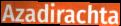
Azadirachta